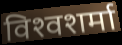
विश्वशर्मा